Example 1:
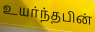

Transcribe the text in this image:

உயர்ந்தபின்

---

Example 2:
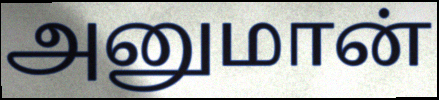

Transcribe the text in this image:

அனுமான்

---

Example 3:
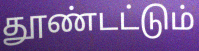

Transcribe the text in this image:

தூண்டட்டும்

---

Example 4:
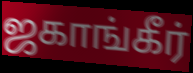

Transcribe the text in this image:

ஜகாங்கீர்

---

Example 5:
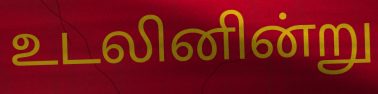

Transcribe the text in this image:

உடலினின்று